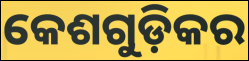
କେଶଗୁଡ଼ିକର